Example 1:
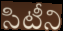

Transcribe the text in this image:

సిటీని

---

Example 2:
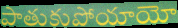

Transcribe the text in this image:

పాతుకుపోయాయో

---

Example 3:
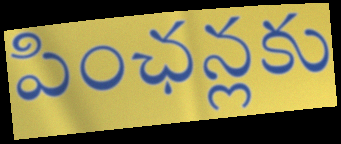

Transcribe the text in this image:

పింఛన్లకు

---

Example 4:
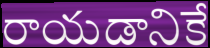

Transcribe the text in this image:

రాయడానికే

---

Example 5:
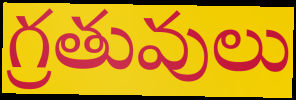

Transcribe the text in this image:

గ్రతువులు